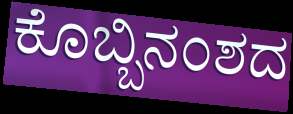
ಕೊಬ್ಬಿನಂಶದ